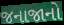
જનાજાનો